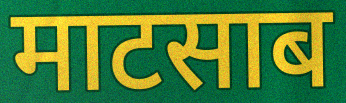
माटसाब